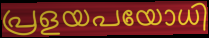
പ്രളയപയോധി